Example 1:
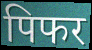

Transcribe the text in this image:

पिफर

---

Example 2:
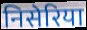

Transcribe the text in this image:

निसेरिया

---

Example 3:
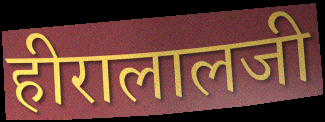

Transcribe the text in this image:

हीरालालजी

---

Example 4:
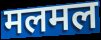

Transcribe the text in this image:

मलमल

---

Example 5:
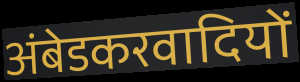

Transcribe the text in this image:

अंबेडकरवादियों